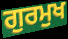
ਗੁਰਮੁਖ